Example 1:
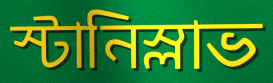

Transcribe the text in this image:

স্টানিস্লাভ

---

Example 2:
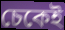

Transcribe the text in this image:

চেকেই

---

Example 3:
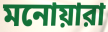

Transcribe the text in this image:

মনোয়ারা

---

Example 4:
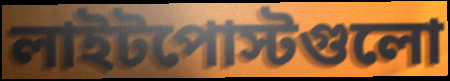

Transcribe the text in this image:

লাইটপোস্টগুলো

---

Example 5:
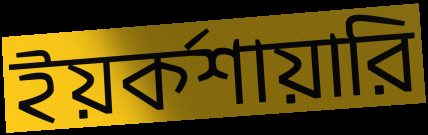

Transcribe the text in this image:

ইয়র্কশায়ারি